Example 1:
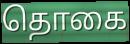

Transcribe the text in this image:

தொகை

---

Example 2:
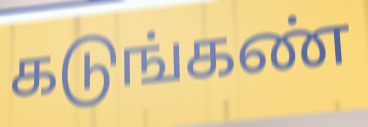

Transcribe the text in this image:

கடுங்கண்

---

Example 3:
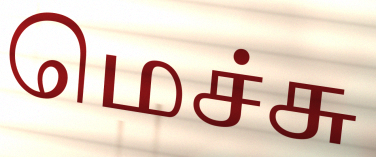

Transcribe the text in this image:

மெச்சு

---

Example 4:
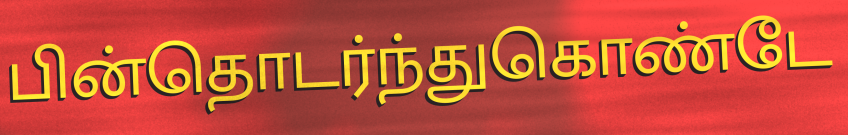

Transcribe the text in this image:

பின்தொடர்ந்துகொண்டே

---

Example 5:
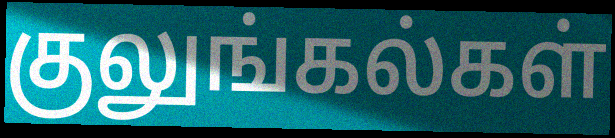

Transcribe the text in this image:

குலுங்கல்கள்